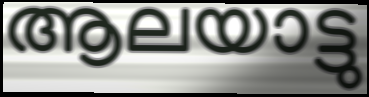
ആലയാട്ടു